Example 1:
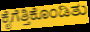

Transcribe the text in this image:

ಕೈಗೆತ್ತಿಕೊಂಡಿತು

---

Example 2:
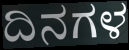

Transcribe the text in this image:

ದಿನಗಳ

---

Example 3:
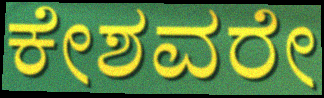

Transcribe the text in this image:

ಕೇಶವರೇ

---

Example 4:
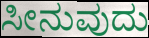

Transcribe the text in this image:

ಸೀನುವುದು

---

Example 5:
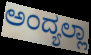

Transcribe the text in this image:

ಅಂದ್ಯಲ್ಲಾ